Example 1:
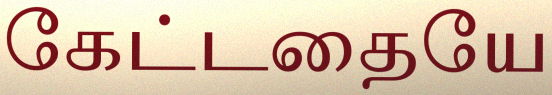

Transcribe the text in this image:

கேட்டதையே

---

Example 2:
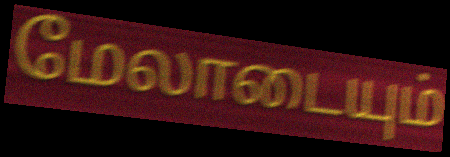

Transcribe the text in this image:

மேலாடையும்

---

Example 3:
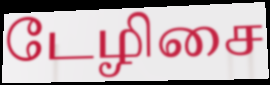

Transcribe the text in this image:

டேழிசை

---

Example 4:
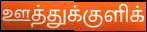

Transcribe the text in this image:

ஊத்துக்குளிக்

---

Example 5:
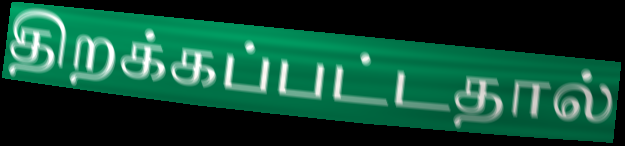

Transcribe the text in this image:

திறக்கப்பட்டதால்